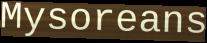
Mysoreans